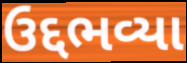
ઉદ્દભવ્યા